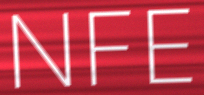
NFE